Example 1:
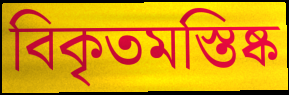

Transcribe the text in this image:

বিকৃতমস্তিষ্ক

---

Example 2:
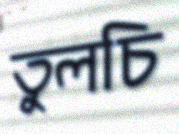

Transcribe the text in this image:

তুলচি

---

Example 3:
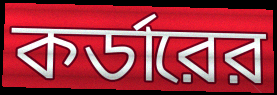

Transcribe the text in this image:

কর্ডারের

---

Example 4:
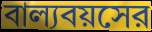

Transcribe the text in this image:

বাল্যবয়সের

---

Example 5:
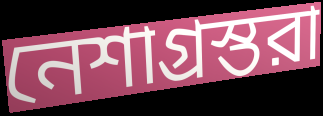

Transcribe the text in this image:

নেশাগ্রস্তরা